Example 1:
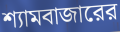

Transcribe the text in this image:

শ্যামবাজারের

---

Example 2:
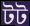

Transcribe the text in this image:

টট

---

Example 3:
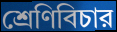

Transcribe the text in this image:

শ্রেণিবিচার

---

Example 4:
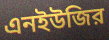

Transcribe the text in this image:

এনইউজির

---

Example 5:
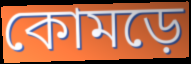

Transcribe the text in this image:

কোমড়ে